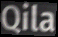
Qila